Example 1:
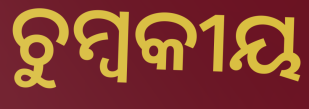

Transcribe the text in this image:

ଚୁମ୍ବକୀୟ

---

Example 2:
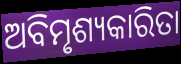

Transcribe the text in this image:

ଅବିମୃଶ୍ୟକାରିତା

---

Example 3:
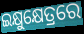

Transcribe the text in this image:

ଇକ୍ଷୁକ୍ଷେତ୍ରରେ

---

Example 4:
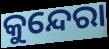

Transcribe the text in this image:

କୁନ୍ଦେରା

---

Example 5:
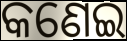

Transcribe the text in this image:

କଣେଇ